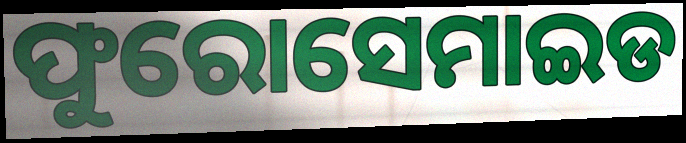
ଫୁରୋସେମାଇଡ